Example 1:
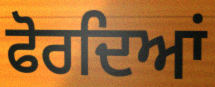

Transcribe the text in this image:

ਫੋਰਦਿਆਂ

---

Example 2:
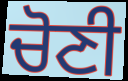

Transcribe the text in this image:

ਚੋਣੀ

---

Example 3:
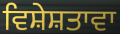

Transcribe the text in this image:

ਵਿਸ਼ੇਸ਼ਤਾਵਾ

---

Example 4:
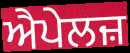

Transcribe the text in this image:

ਐਪੇਲਜ਼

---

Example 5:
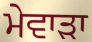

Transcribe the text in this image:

ਮੇਵਾੜਾ